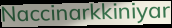
Naccinarkkiniyar